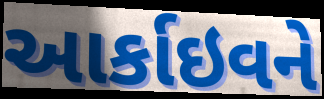
આર્કાઇવને